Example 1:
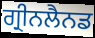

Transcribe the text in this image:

ਗ੍ਰੀਨਲੈਨਡ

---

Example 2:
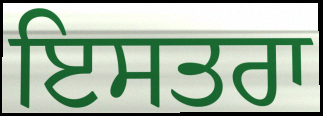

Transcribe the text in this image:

ਇਸਤਰਾ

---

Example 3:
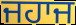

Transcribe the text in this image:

ਜਹਾਜ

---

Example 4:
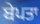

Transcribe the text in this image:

ਬੇਪਤਾ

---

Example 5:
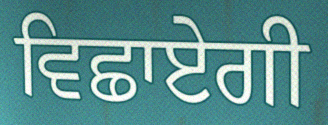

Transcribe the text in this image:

ਵਿਛਾਏਗੀ